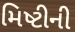
મિષ્ટીની